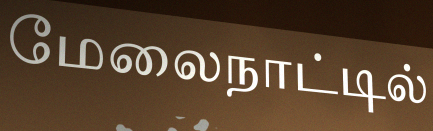
மேலைநாட்டில்